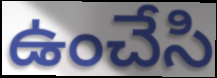
ఉంచేసి